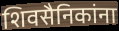
शिवसैनिकांना